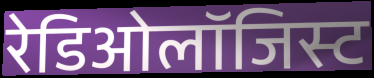
रेडिओलॉजिस्ट